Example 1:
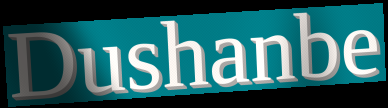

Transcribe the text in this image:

Dushanbe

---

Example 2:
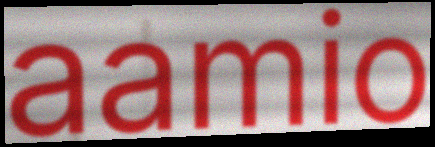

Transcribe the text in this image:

aamio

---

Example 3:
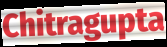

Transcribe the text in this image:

Chitragupta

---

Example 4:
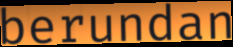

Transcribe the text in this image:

berundan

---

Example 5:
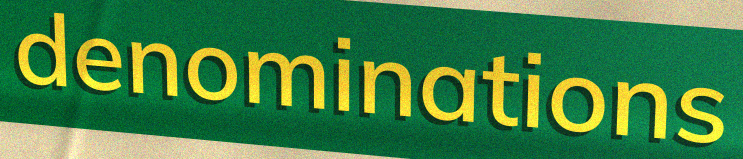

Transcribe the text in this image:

denominations